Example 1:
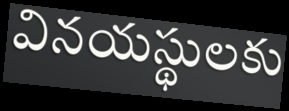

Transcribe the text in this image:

వినయస్థులకు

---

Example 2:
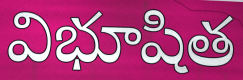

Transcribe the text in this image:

విభూషిత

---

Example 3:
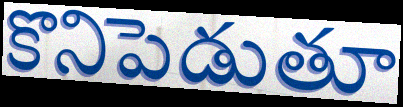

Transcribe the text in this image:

కొనిపెడుతూ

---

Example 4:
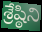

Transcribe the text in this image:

శ్రేష్ఠిని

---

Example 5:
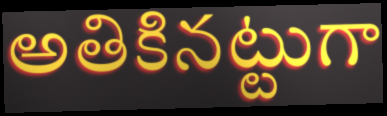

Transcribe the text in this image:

అతికినట్టుగా